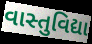
વાસ્તુવિદ્યા